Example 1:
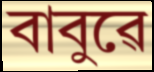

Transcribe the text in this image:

বাবুৱে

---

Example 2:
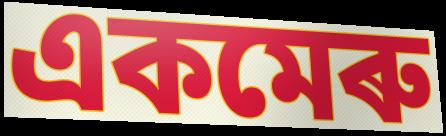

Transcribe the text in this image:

একমেৰু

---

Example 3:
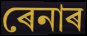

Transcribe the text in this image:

ৰেনাৰ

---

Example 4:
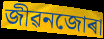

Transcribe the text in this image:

জীৱনজোৰা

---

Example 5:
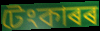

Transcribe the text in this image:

টেংকাৰৰ